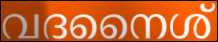
വദനൈശ്